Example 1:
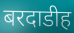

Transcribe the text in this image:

बरदाडीह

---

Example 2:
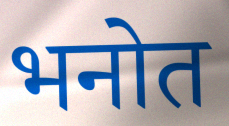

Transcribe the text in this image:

भनोत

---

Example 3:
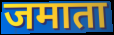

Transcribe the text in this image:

जमाता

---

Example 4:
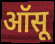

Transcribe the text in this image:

ऑसू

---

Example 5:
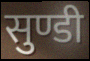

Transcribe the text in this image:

सुण्डी